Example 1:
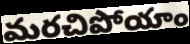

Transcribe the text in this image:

మరచిపోయాం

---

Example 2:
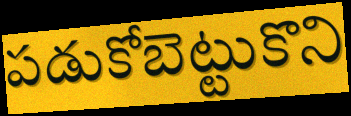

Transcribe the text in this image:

పడుకోబెట్టుకొని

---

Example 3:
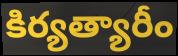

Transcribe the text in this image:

కిర్యత్యారీం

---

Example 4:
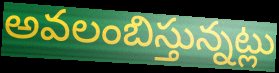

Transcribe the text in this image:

అవలంబిస్తున్నట్లు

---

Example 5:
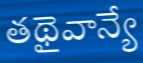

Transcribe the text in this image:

తథైవాన్యే